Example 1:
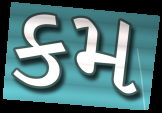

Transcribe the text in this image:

કમ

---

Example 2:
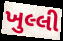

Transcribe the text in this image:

ખુલ્લી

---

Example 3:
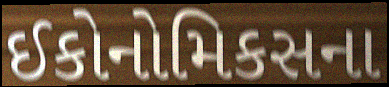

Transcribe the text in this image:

ઈકોનોમિકસના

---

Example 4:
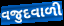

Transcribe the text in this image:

વજુદવાળી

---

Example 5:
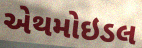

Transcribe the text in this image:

એથમોઇડલ